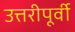
उत्तरीपूर्वी